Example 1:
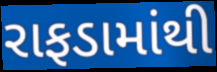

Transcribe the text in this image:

રાફડામાંથી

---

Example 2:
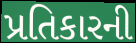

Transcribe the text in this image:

પ્રતિકારની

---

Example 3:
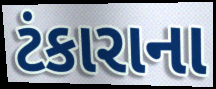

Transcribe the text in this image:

ટંકારાના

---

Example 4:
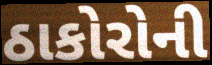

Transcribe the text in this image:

ઠાકોરોની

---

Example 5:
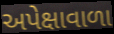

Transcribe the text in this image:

અપેક્ષાવાળા